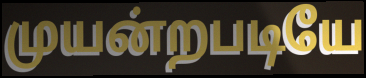
முயன்றபடியே